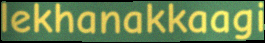
lekhanakkaagi